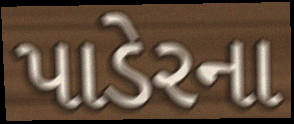
પાડેરના